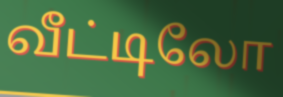
வீட்டிலோ